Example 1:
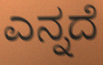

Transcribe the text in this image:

ಎನ್ನದೆ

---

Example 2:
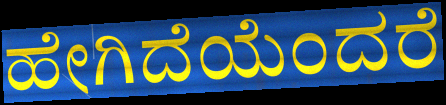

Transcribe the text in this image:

ಹೇಗಿದೆಯೆಂದರೆ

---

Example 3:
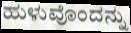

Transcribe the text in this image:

ಹುಳುವೊಂದನ್ನು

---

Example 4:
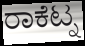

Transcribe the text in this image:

ರಾಕೆಟ್ನ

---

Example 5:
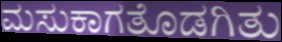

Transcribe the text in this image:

ಮಸುಕಾಗತೊಡಗಿತು